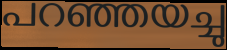
പറഞ്ഞയച്ചു